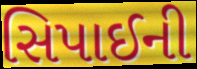
સિપાઈની